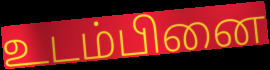
உடம்பினை